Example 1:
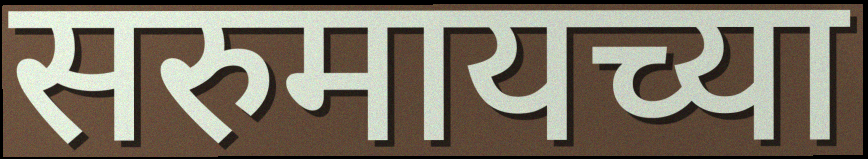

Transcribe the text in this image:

सरुमायच्या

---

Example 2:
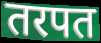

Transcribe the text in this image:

तरपत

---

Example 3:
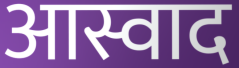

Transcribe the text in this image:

आस्वाद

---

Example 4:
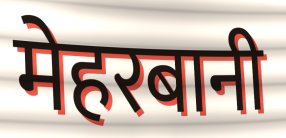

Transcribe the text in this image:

मेहरबानी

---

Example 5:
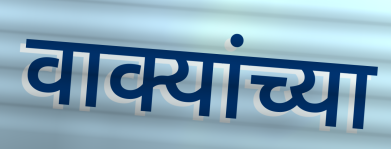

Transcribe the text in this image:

वाक्यांच्या